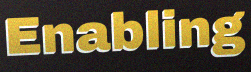
Enabling